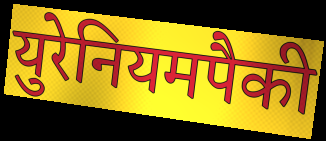
युरेनियमपैकी